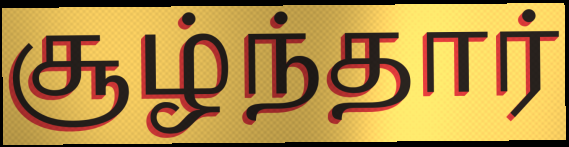
சூழ்ந்தார்